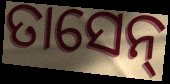
ତାସେନ୍